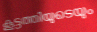
കൂട്ടത്തിയുടെയും